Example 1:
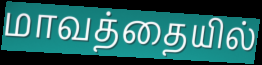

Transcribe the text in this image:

மாவத்தையில்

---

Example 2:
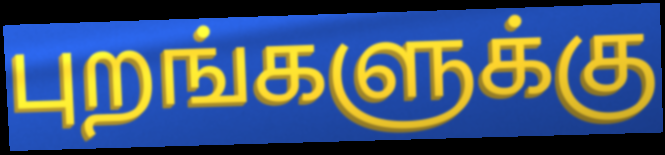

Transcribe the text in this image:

புறங்களுக்கு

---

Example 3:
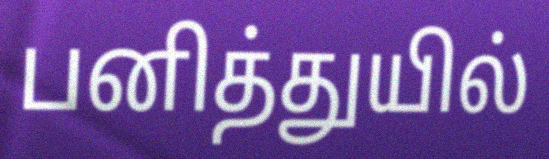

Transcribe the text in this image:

பனித்துயில்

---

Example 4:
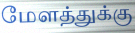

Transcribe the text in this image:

மேளத்துக்கு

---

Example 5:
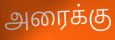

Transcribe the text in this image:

அரைக்கு